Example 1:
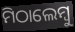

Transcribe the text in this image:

ମିଠାଲେମ୍ବୁ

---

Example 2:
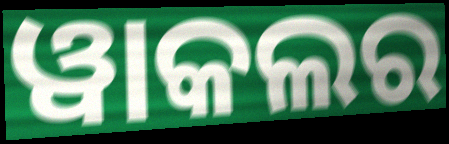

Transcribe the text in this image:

ୱାକଲର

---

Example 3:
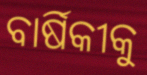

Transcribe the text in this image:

ବାର୍ଷିକୀକୁ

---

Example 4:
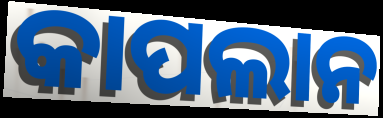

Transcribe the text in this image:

କାପଲାନ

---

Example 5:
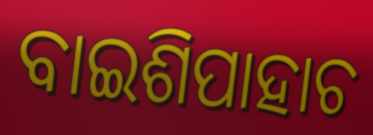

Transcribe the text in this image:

ବାଇଶିପାହାଚ